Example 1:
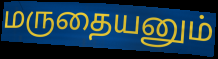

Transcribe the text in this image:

மருதையனும்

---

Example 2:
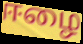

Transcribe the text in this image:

ஈழை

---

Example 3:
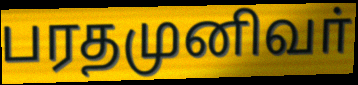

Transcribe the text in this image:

பரதமுனிவர்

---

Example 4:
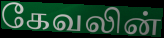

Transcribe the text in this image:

கேவலின்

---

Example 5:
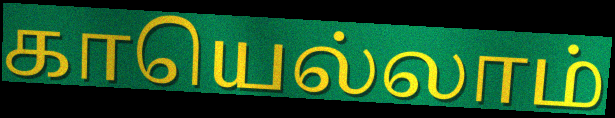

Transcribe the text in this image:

காயெல்லாம்